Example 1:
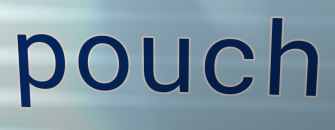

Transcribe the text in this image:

pouch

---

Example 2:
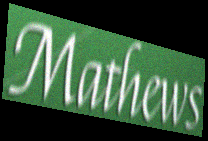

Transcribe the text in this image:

Mathews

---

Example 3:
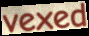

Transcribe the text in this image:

vexed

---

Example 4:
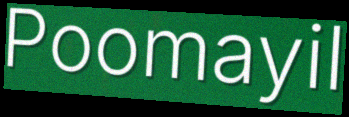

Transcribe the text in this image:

Poomayil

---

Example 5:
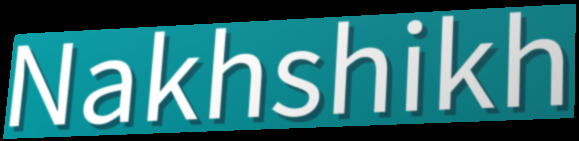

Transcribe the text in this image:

Nakhshikh